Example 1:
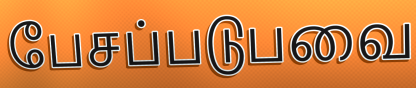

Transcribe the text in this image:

பேசப்படுபவை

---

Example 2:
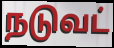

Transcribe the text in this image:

நடுவட்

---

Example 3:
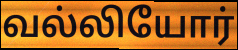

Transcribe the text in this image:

வல்லியோர்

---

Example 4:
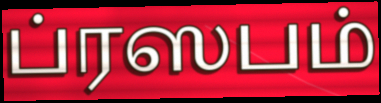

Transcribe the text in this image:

ப்ரஸபம்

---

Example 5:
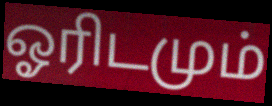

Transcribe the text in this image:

ஓரிடமும்